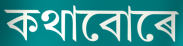
কথাবোৰে